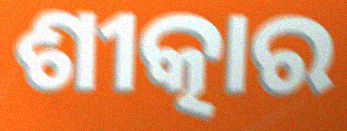
ଶୀତ୍କାର